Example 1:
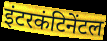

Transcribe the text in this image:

इंटरकंटिनेंटल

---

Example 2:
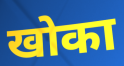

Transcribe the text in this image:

खोका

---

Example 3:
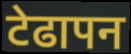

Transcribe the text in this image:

टेढापन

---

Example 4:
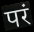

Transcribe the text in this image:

परं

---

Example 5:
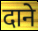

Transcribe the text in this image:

दाने